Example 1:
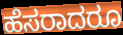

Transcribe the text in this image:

ಹೆಸರಾದರೂ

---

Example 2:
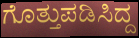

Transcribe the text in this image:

ಗೊತ್ತುಪಡಿಸಿದ್ದ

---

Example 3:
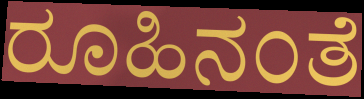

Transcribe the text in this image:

ರೂಹಿನಂತೆ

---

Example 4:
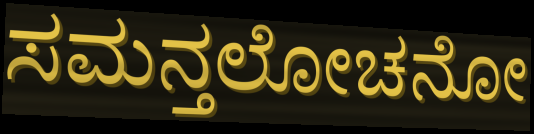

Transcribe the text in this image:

ಸಮನ್ತಲೋಚನೋ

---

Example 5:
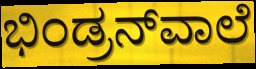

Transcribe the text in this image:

ಭಿಂಡ್ರನ್‌ವಾಲೆ